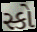
સ્કો